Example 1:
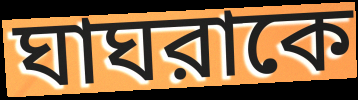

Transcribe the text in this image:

ঘাঘরাকে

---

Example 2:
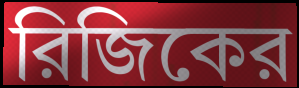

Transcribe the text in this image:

রিজিকের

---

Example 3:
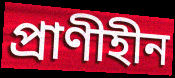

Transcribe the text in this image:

প্রাণীহীন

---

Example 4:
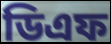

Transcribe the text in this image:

ডিএফ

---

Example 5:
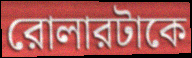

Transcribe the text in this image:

রোলারটাকে